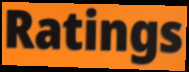
Ratings